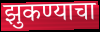
झुकण्याचा